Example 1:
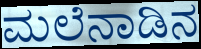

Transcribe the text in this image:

ಮಲೆನಾಡಿನ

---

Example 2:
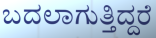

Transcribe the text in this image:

ಬದಲಾಗುತ್ತಿದ್ದರೆ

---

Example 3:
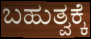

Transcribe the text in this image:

ಬಹುತ್ವಕ್ಕೆ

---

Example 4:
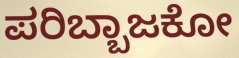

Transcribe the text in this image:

ಪರಿಬ್ಬಾಜಕೋ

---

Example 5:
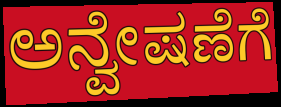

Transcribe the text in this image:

ಅನ್ವೇಷಣೆಗೆ